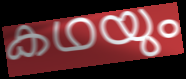
കഥയും